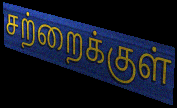
சற்றைக்குள்